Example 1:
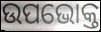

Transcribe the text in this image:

ଉପଭୋକ୍ତ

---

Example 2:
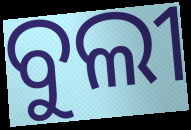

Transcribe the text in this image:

ବୁଲୀ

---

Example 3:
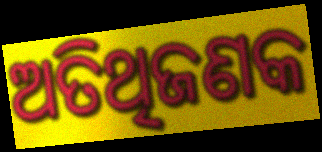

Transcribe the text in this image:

ଅତିଥିଜଣକ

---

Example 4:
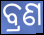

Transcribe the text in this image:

ବ୍ରଣ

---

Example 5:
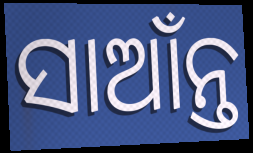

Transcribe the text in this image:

ସାଆଁନ୍ତ